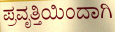
ಪ್ರವೃತ್ತಿಯಿಂದಾಗಿ